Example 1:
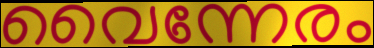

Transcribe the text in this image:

വൈന്നേരം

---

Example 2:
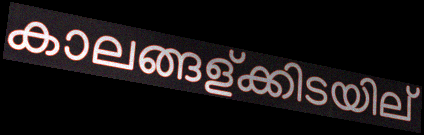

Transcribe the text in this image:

കാലങ്ങള്ക്കിടയില്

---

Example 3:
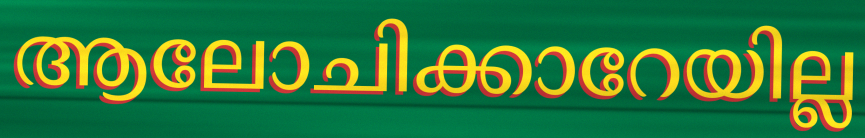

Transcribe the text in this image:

ആലോചിക്കാറേയില്ല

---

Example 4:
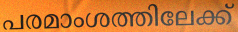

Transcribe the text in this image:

പരമാംശത്തിലേക്ക്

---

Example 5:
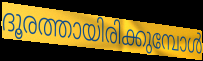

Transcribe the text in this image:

ദൂരത്തായിരിക്കുമ്പോൾ